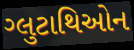
ગ્લુટાથિઓન